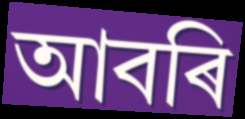
আবৰি